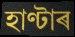
হাণ্টাৰ